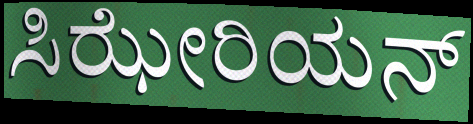
ಸಿಝೇರಿಯನ್